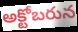
అక్టోబరున